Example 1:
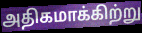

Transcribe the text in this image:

அதிகமாக்கிற்று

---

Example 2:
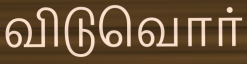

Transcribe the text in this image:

விடுவொர்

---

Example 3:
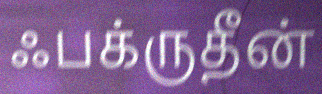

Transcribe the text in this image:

ஃபக்ருதீன்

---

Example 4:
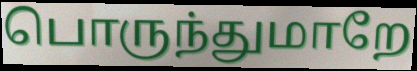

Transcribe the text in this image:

பொருந்துமாறே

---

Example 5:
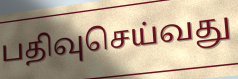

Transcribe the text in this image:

பதிவுசெய்வது